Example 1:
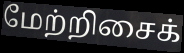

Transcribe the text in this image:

மேற்றிசைக்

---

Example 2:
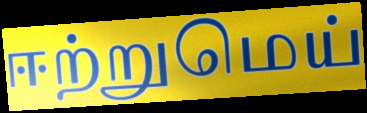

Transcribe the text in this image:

ஈற்றுமெய்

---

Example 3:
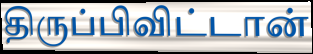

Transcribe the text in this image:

திருப்பிவிட்டான்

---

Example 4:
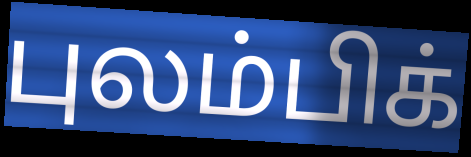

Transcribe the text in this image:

புலம்பிக்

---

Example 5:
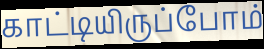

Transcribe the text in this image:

காட்டியிருப்போம்